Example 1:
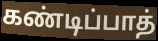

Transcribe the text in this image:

கண்டிப்பாத்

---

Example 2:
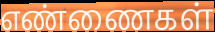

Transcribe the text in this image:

எண்ணைகள்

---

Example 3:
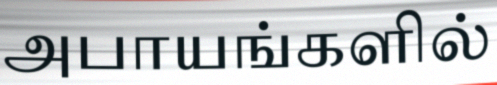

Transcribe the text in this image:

அபாயங்களில்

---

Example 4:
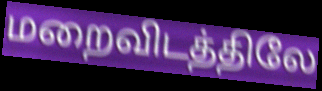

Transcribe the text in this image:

மறைவிடத்திலே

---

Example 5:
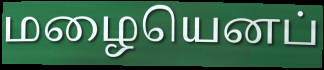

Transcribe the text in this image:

மழையெனப்